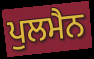
ਪੁਲਮੈਨ